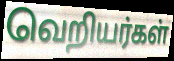
வெறியர்கள்